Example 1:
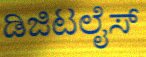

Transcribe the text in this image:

ಡಿಜಿಟಲೈಸ್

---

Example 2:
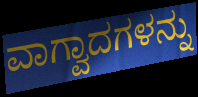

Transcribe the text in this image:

ವಾಗ್ವಾದಗಳನ್ನು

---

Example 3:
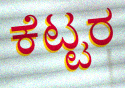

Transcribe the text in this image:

ಕೆಟ್ಟರ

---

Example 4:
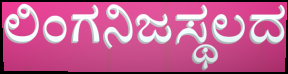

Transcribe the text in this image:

ಲಿಂಗನಿಜಸ್ಥಲದ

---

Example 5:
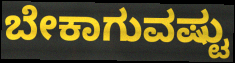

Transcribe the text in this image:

ಬೇಕಾಗುವಷ್ಟು